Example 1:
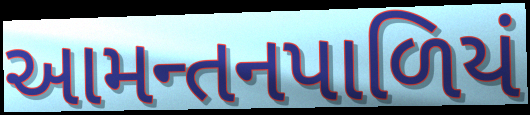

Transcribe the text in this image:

આમન્તનપાળિયં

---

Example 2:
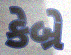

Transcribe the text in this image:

કેબ્રે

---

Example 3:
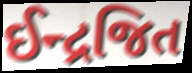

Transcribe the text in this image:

ઈન્દ્રજિત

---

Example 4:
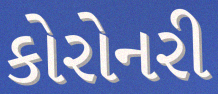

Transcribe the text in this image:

કોરોનરી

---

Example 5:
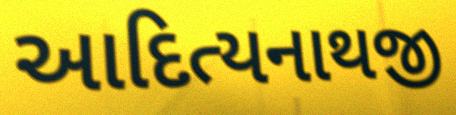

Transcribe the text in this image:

આદિત્યનાથજી